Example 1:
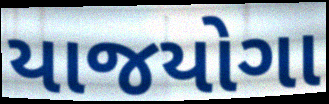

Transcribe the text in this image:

યાજયોગા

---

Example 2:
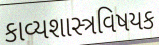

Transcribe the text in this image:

કાવ્યશાસ્ત્રવિષયક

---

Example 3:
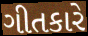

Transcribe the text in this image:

ગીતકારે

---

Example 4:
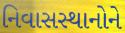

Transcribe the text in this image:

નિવાસસ્થાનોને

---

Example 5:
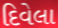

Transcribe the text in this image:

દિવેલા